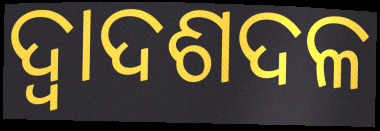
ଦ୍ୱାଦଶଦଳ